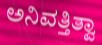
ಅನಿವತ್ತಿತ್ವಾ